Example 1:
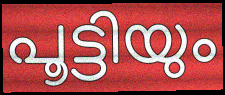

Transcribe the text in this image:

പൂട്ടിയും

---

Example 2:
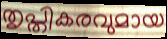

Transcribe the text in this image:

തൃപ്തികരവുമായ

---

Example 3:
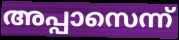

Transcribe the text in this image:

അപ്പാസെന്ന്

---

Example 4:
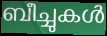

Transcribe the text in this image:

ബീച്ചുകൾ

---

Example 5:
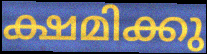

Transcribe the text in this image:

ക്ഷമിക്കു